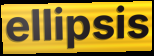
ellipsis